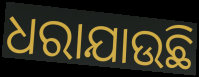
ଧରାଯାଉଛି